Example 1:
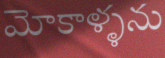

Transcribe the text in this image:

మోకాళ్ళను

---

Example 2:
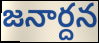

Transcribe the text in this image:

జనార్దన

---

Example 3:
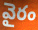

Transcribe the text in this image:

వైరం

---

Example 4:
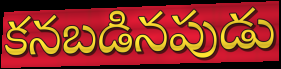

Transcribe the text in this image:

కనబడినపుడు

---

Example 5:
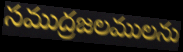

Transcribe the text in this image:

సముద్రజలములను